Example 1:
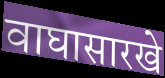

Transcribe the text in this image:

वाघासारखे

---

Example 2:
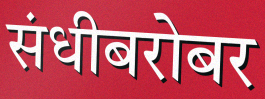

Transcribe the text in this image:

संधीबरोबर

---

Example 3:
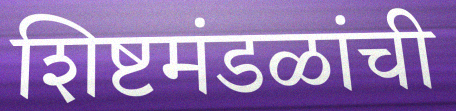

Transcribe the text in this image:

शिष्टमंडळांची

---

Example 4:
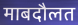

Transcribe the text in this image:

माबदौलत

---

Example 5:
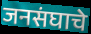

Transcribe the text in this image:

जनसंघाचे